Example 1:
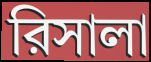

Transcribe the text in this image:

রিসালা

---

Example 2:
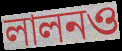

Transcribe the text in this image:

লালনও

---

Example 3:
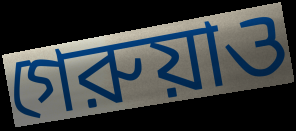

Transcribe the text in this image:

গেরুয়াও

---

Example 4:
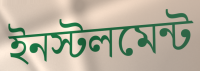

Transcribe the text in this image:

ইনস্টলমেন্ট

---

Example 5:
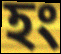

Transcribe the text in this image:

হং